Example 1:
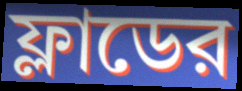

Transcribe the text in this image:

ফ্লাডের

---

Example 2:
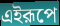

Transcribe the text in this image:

এইরূপে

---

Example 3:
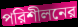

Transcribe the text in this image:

পরিশীলনের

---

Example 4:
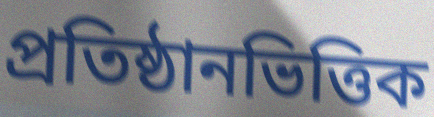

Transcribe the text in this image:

প্রতিষ্ঠানভিত্তিক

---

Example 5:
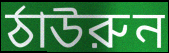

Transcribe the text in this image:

ঠাউরুন